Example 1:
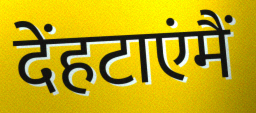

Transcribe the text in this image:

देंहटाएंमैं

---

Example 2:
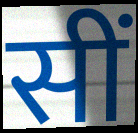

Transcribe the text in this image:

सीं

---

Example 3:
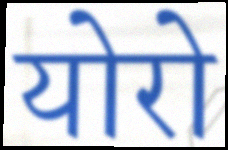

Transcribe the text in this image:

योरो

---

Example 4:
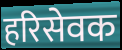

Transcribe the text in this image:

हरिसेवक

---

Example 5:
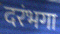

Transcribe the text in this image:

दरंभगा